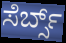
ಸೆರ್ಬ್ಸ್